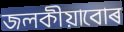
জলকীয়াবোৰ